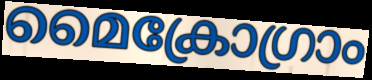
മൈക്രോഗ്രാം